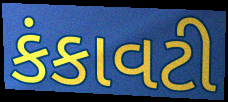
કંકાવટી